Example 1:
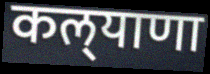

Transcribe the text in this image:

कल्याणा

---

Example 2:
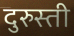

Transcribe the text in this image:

दुरुस्ती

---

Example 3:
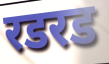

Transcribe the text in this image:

रडरड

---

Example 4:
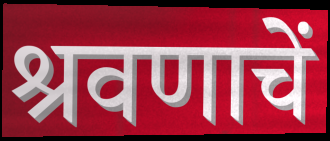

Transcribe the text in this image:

श्रवणाचें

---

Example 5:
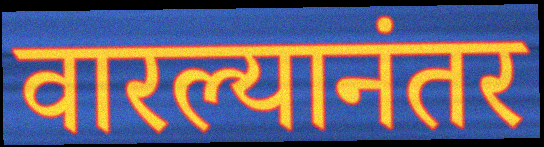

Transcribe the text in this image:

वारल्यानंतर